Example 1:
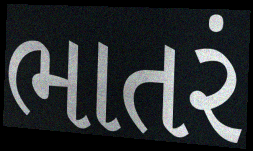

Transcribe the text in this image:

ભાતરં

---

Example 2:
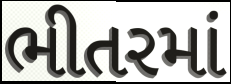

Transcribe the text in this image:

ભીતરમાં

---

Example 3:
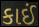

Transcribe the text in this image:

કાઈં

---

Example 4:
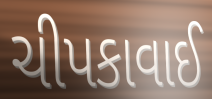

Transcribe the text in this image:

ચીપકાવાઈ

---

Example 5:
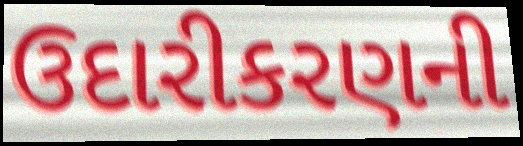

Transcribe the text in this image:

ઉદારીકરણની